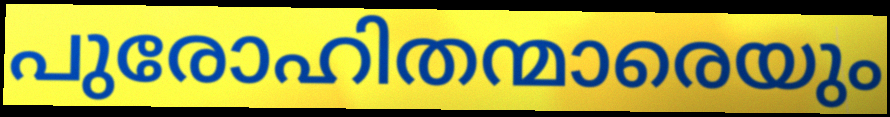
പുരോഹിതന്മാരെയും